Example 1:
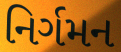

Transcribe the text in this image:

નિર્ગમન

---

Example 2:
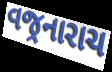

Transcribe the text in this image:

વજ્રનારાચ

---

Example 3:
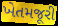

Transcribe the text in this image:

ખેતમજૂરી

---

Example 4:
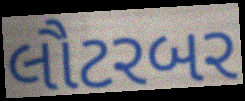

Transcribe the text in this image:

લૌટરબર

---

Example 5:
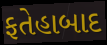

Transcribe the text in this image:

ફતેહાબાદ